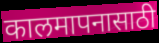
कालमापनासाठी